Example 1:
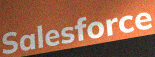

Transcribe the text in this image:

Salesforce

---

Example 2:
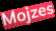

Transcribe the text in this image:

Mojzes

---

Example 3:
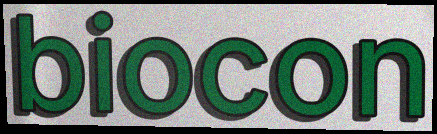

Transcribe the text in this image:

biocon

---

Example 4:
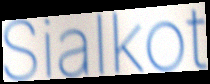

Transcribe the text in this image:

Sialkot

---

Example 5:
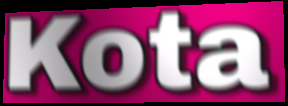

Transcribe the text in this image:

Kota